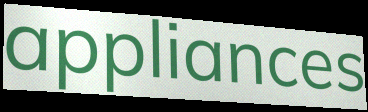
appliances